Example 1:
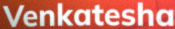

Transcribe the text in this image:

Venkatesha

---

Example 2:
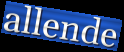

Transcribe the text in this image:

allende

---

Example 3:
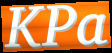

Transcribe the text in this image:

KPa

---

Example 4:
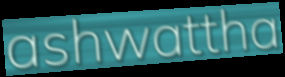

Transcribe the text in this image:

ashwattha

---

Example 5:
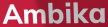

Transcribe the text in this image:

Ambika